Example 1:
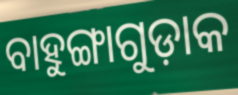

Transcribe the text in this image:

ବାହୁଙ୍ଗାଗୁଡ଼ାକ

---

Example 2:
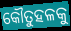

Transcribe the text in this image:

କୌତୁହଳକୁ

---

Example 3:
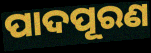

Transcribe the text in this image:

ପାଦପୂରଣ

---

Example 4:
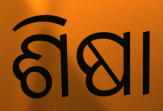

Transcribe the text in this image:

ଶିଷା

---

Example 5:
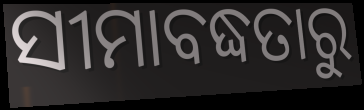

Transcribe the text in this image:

ସୀମାବଦ୍ଧତାରୁ